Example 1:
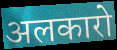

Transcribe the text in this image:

अलकारो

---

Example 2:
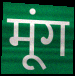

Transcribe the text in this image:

मूंग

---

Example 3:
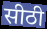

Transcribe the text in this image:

सीठी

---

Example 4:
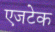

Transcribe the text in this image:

एजटेक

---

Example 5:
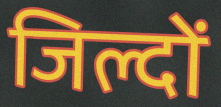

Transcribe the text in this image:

जिल्दों